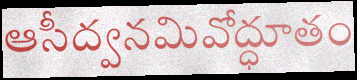
ఆసీద్వనమివోద్ధూతం